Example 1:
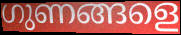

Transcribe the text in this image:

ഗുണങ്ങളെ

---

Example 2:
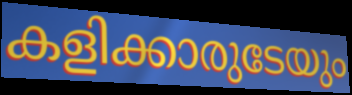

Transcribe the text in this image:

കളിക്കാരുടേയും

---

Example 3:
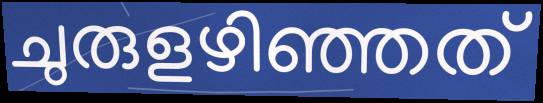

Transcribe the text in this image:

ചുരുളഴിഞ്ഞത്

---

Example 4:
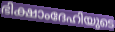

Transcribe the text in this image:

ഭിക്ഷാംദേഹിയുടെ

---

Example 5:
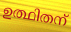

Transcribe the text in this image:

ഉത്ഥിതന്